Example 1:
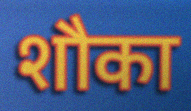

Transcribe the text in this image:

शौका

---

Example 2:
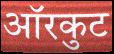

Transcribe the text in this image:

ऑरकुट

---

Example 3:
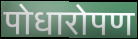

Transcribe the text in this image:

पोधारोपण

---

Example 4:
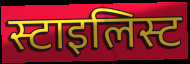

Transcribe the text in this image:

स्टाइलिस्ट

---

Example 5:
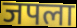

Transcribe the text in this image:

जपला